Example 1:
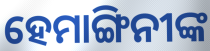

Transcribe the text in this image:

ହେମାଙ୍ଗିନୀଙ୍କ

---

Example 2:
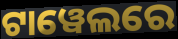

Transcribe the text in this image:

ଟାୱେଲରେ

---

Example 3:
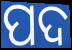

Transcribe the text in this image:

ପଦ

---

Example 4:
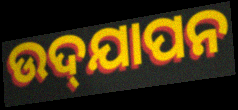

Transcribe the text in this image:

ଉଦ୍‌ଯାପନ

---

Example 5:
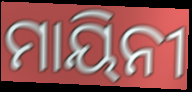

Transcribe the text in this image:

ମାୟିନୀ